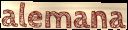
alemana